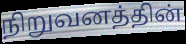
நிறுவனத்தின்